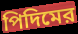
পিদিমের